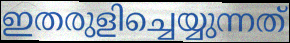
ഇതരുളിച്ചെയ്യുന്നത്